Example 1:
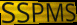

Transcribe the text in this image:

SSPMS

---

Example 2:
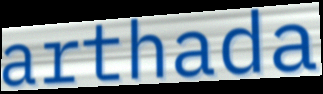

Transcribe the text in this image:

arthada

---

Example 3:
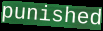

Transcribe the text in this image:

punished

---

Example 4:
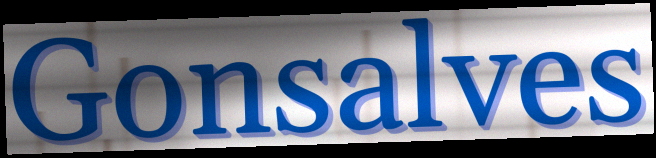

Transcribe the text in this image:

Gonsalves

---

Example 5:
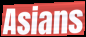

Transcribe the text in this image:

Asians